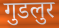
गुडलुर